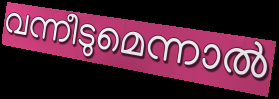
വന്നീടുമെന്നാൽ